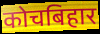
कोचबिहार